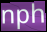
nph